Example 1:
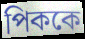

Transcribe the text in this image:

পিককে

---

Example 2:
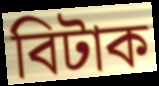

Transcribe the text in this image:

বিটাক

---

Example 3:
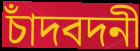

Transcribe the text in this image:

চাঁদবদনী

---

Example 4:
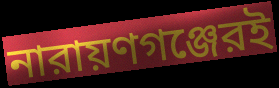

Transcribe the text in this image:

নারায়ণগঞ্জেরই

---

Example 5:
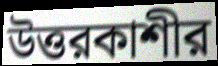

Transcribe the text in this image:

উত্তরকাশীর